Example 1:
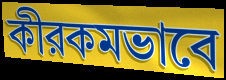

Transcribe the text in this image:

কীরকমভাবে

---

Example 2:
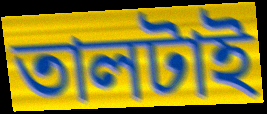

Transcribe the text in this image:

তালটাই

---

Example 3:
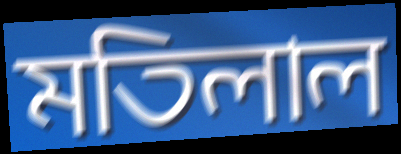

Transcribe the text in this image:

মতিলাল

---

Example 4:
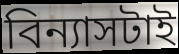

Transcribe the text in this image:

বিন্যাসটাই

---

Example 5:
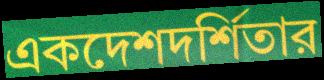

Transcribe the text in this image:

একদেশদর্শিতার